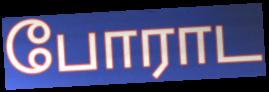
போராட